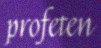
profeten